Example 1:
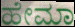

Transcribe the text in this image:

ಹೇಮಾ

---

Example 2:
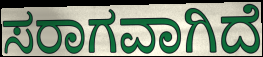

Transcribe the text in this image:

ಸರಾಗವಾಗಿದೆ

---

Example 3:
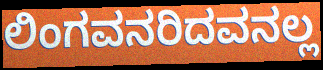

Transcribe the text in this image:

ಲಿಂಗವನರಿದವನಲ್ಲ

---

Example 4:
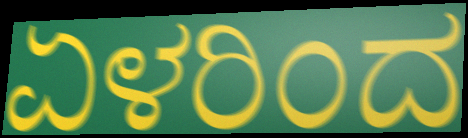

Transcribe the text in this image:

ಏಳರಿಂದ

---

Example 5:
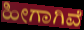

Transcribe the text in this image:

ಹೀಗಾಗಿವೆ